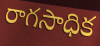
రాగసాధిక